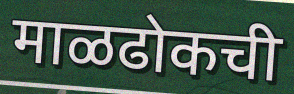
माळढोकची